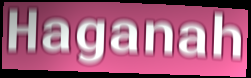
Haganah